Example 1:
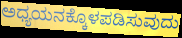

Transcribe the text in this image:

ಅಧ್ಯಯನಕ್ಕೊಳಪಡಿಸುವುದು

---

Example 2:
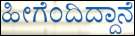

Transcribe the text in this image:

ಹೀಗೆಂದಿದ್ದಾನೆ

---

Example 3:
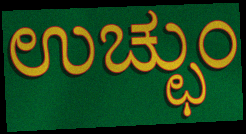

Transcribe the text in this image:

ಉಚ್ಛುಂ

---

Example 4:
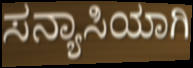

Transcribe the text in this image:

ಸನ್ಯಾಸಿಯಾಗಿ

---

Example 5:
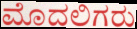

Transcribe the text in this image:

ಮೊದಲಿಗರು